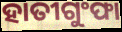
ହାତୀଗୁଂଫା